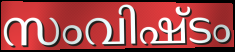
സംവിഷ്ടം